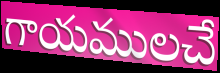
గాయములచే